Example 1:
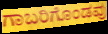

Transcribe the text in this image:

ಗಾಬರಿಗೊಂಡವು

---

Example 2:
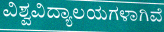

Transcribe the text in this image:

ವಿಶ್ವವಿದ್ಯಾಲಯಗಳಾಗಿವೆ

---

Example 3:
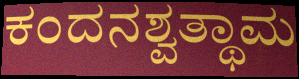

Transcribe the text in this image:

ಕಂದನಶ್ವತ್ಥಾಮ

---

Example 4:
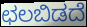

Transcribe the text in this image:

ಛಲಬಿಡದೆ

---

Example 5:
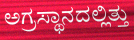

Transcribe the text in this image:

ಅಗ್ರಸ್ಥಾನದಲ್ಲಿತ್ತು